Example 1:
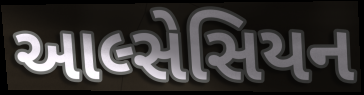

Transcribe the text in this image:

આલ્સેસિયન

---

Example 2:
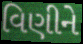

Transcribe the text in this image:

વિણીને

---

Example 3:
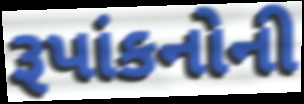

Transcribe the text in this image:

રૂપાંકનોની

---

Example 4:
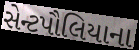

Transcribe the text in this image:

સેન્ટપૌલિયાના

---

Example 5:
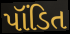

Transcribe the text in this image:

પૉંડિત